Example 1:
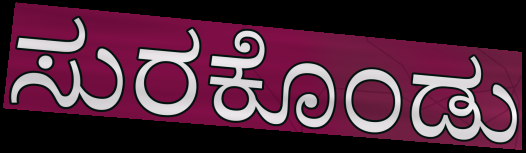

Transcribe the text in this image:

ಸುರಕೊಂಡು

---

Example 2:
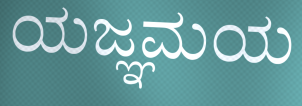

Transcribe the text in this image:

ಯಜ್ಞಮಯ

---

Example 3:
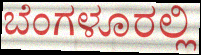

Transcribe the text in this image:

ಬೆಂಗಳೂರಲ್ಲಿ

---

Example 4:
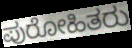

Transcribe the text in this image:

ಪುರೋಹಿತರು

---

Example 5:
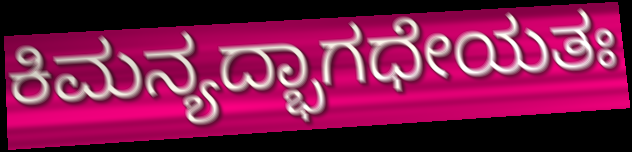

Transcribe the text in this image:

ಕಿಮನ್ಯದ್ಭಾಗಧೇಯತಃ